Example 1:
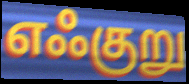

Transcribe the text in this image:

எஃகுறு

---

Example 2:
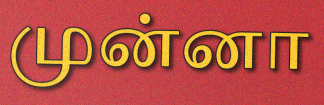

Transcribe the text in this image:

முன்னா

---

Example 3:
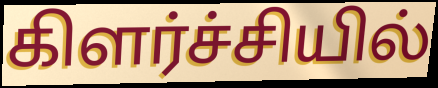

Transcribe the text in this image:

கிளர்ச்சியில்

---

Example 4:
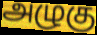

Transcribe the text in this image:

அழுகு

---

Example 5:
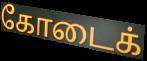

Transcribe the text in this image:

கோடைக்